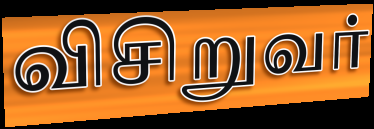
விசிறுவர்